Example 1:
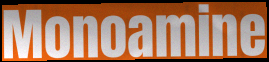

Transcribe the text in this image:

Monoamine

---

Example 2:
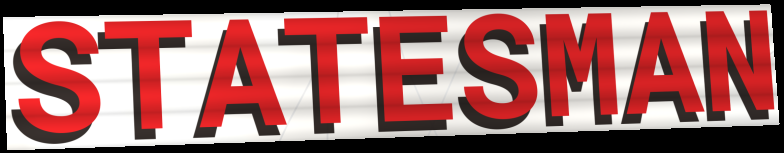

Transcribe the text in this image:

STATESMAN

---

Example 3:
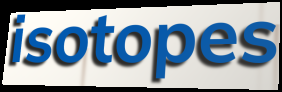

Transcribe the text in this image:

isotopes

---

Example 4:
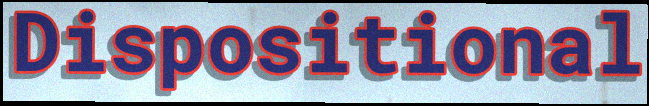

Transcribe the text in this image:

Dispositional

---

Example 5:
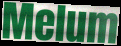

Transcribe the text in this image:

Melum